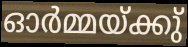
ഓർമ്മയ്ക്കു്